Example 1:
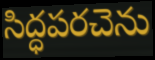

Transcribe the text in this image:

సిద్ధపరచెను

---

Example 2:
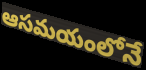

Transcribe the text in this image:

ఆసమయంలోనే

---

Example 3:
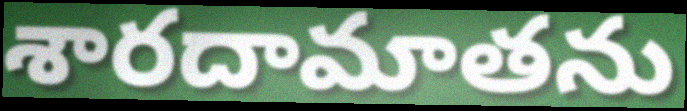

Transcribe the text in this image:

శారదామాతను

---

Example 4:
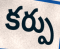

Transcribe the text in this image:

కర్పు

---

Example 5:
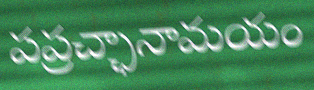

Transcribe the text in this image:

పప్రచ్ఛానామయం